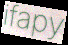
ifapy